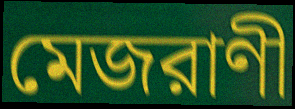
মেজরাণী